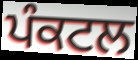
ਪੰਕਟਲ